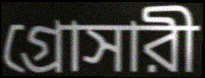
গ্রোসারী